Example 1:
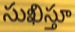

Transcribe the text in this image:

సుఖిస్తూ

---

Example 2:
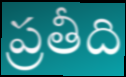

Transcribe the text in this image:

ప్రతీది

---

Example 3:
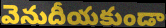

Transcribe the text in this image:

వెనుదీయకుండా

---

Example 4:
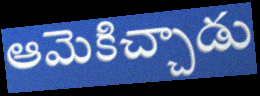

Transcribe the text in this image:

ఆమెకిచ్చాడు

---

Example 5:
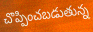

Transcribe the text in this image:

చొప్పించబడుతున్న